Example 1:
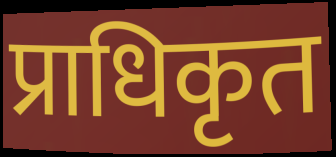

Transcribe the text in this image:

प्राधिकृत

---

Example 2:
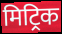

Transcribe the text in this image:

मिट्रिक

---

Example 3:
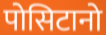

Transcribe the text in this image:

पोसिटानो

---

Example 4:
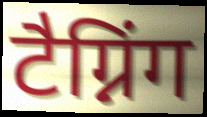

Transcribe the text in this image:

टैग्निंग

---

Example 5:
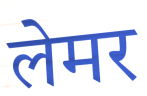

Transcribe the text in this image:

लेमर